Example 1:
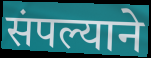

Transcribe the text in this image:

संपल्याने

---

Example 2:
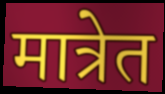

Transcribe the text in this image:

मात्रेत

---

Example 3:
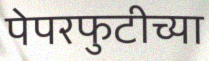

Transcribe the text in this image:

पेपरफुटीच्या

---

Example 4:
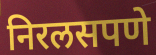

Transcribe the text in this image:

निरलसपणे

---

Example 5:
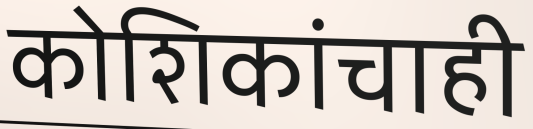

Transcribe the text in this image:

कोशिकांचाही